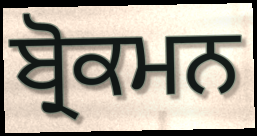
ਬ੍ਰੋਕਮਨ